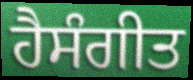
ਹੈਸੰਗੀਤ